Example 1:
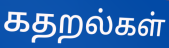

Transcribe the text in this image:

கதறல்கள்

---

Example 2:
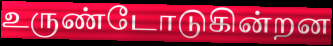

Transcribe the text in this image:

உருண்டோடுகின்றன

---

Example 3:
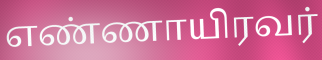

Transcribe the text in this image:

எண்ணாயிரவர்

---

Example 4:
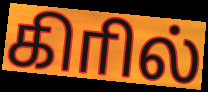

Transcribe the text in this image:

கிரில்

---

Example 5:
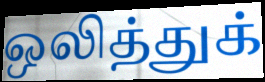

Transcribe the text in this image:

ஒலித்துக்